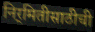
निर्मितीसाठीची